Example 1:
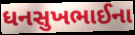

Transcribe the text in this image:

ધનસુખભાઈના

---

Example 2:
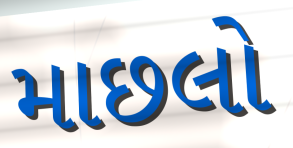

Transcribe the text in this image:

માછલો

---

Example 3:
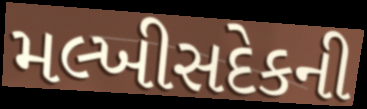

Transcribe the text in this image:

મલ્ખીસદેકની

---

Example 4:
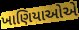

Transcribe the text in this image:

ખાણિયાઓએ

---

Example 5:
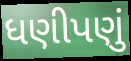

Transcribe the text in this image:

ધણીપણું